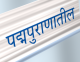
पद्मपुराणातील